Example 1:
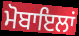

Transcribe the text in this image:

ਮੋਬਾਇਲਾਂ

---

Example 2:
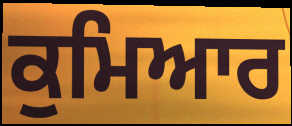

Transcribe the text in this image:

ਕੁਮਿਆਰ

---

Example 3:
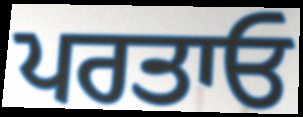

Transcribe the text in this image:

ਪਰਤਾਓ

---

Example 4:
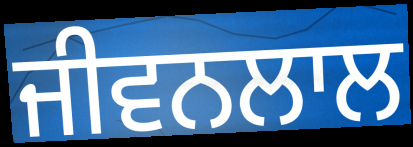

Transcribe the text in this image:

ਜੀਵਨਲਾਲ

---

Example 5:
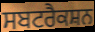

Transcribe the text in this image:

ਸਬਟਰੈਕਸ਼ਨ